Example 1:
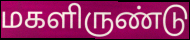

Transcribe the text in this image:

மகளிருண்டு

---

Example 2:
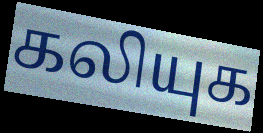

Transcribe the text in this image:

கலியுக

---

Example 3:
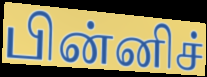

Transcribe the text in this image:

பின்னிச்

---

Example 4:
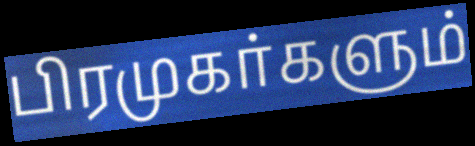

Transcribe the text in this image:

பிரமுகர்களும்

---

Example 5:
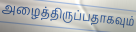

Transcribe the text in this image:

அழைத்திருப்பதாகவும்